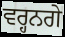
ਵਰ੍ਹਨਗੇ